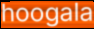
hoogala